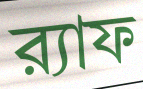
র‍্যাফ